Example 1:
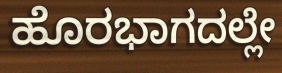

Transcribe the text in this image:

ಹೊರಭಾಗದಲ್ಲೇ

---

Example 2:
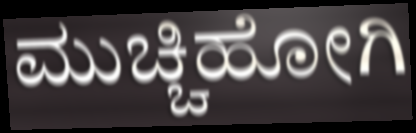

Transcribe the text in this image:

ಮುಚ್ಚಿಹೋಗಿ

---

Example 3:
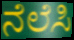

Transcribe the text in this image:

ನೆಲೆಸಿ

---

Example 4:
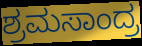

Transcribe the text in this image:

ಶ್ರಮಸಾಂದ್ರ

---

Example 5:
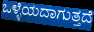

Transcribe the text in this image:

ಒಳ್ಳೆಯದಾಗುತ್ತದೆ